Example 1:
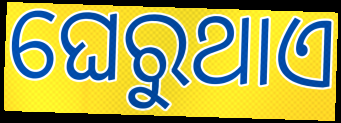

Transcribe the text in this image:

ଘେରୁଥାଏ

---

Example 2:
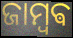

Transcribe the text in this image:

ଜାମ୍ବଵ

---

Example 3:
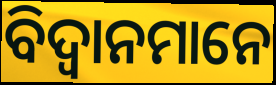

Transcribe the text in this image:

ବିଦ୍ଵାନମାନେ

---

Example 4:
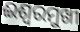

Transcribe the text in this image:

ଈଶ୍ୱରମୁଖୀ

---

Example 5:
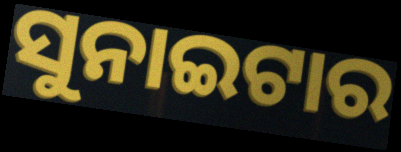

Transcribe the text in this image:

ସୁନାଇଟାର